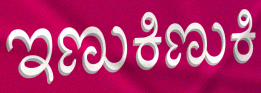
ಇಣುಕಿಣುಕಿ